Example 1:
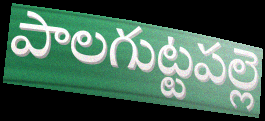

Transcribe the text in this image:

పాలగుట్టపల్లె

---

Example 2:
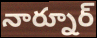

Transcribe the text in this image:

నార్నూర్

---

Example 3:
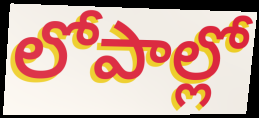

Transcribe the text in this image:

లోపాల్లో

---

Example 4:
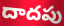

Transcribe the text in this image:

దాదపు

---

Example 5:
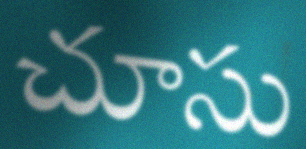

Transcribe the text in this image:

చూసు